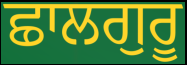
ਛਾਲਗੁਰੂ